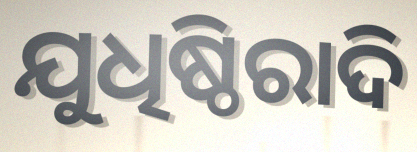
ଯୁଧିଷ୍ଠିରାଦି